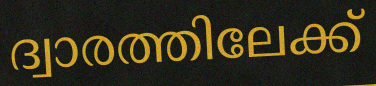
ദ്വാരത്തിലേക്ക്